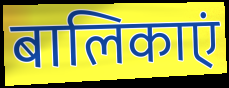
बालिकाएं